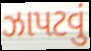
ઝાપટવું